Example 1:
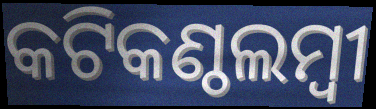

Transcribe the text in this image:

କଟିକଣ୍ଠଲମ୍ବୀ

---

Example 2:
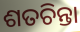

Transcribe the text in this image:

ଶତଚିନ୍ତା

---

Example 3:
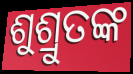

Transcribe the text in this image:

ଶୁଶ୍ରୁତଙ୍କ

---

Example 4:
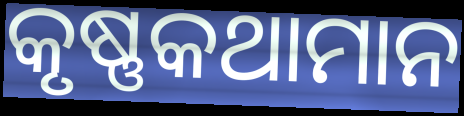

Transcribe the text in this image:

କୃଷ୍ଣକଥାମାନ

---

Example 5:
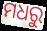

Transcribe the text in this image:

ମଧରୁ